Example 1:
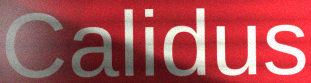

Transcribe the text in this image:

Calidus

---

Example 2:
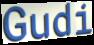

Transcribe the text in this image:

Gudi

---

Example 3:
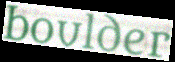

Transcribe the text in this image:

boulder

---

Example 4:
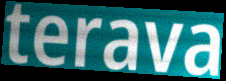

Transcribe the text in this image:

terava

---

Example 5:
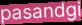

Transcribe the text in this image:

pasandgi